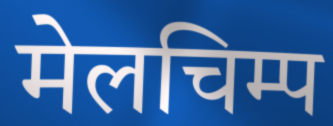
मेलचिम्प